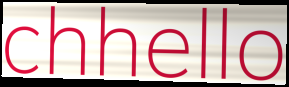
chhello